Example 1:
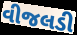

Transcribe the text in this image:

વીજલડી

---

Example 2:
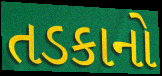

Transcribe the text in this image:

તડકાનો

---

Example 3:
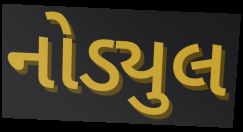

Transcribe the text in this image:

નોડ્યુલ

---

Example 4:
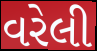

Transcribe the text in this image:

વરેલી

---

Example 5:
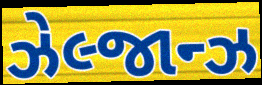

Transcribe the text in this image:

ઝેલ્જાન્ઝ